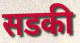
सडकी